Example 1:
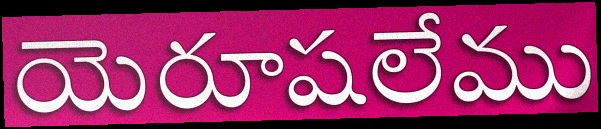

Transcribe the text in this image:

యెరూషలేము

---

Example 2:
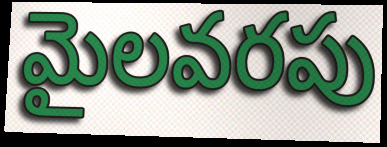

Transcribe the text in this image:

మైలవరపు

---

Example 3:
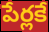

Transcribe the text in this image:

పేర్లకే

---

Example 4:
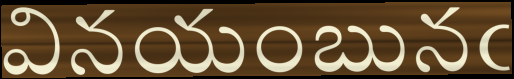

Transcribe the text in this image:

వినయంబునఁ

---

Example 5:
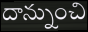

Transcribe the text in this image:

దాన్నుంచి